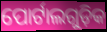
ପୋର୍ଟାଲଗୁଡ଼ିକ